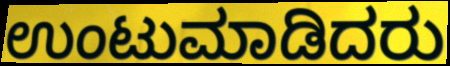
ಉಂಟುಮಾಡಿದರು